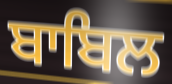
ਬਾਬਿਲ